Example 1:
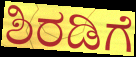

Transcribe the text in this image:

ಶಿರಡಿಗೆ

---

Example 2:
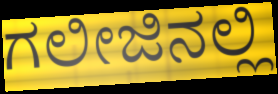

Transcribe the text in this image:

ಗಲೀಜಿನಲ್ಲಿ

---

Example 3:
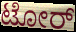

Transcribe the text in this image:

ಟೋರ್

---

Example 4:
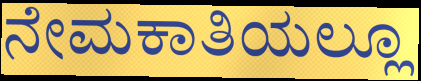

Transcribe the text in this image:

ನೇಮಕಾತಿಯಲ್ಲೂ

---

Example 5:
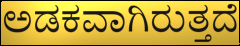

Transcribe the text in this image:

ಅಡಕವಾಗಿರುತ್ತದೆ